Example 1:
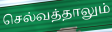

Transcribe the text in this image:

செல்வத்தாலும்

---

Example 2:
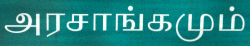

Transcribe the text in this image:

அரசாங்கமும்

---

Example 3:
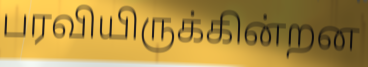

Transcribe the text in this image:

பரவியிருக்கின்றன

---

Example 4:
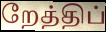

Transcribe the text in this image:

றேத்திப்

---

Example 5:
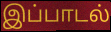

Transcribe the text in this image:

இப்பாடல்